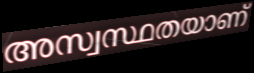
അസ്വസ്ഥതയാണ്